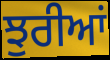
ਝੁਰੀਆਂ